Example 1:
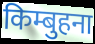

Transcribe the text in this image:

किम्बुहना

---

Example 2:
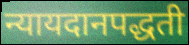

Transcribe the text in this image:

न्यायदानपद्धती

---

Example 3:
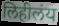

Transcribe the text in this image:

लिहीलंय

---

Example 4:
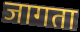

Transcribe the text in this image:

जागता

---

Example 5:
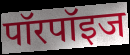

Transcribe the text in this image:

पॉरपॉइज